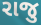
રાજુ